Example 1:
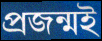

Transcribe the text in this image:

প্ৰজন্মই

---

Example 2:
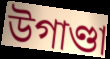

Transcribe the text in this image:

উগাণ্ডা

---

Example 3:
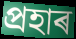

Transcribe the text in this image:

প্ৰহাৰ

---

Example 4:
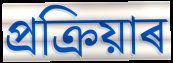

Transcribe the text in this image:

প্ৰক্ৰিয়াৰ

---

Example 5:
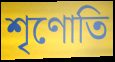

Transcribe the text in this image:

শৃণোতি